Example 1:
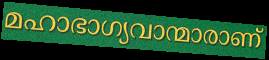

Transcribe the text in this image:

മഹാഭാഗ്യവാന്മാരാണ്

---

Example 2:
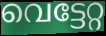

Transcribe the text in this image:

വെട്ടേറ്റ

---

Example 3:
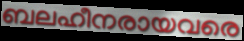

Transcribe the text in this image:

ബലഹീനരായവരെ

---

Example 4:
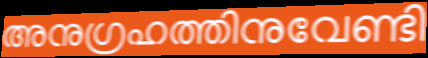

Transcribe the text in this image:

അനുഗ്രഹത്തിനുവേണ്ടി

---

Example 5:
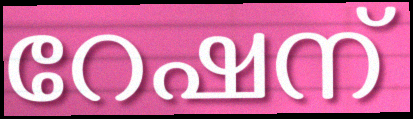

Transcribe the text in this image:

റേഷന്